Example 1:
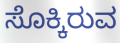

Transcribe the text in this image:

ಸೊಕ್ಕಿರುವ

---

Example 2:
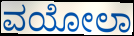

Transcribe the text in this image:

ವಯೋಲಾ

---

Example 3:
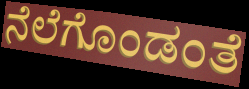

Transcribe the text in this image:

ನೆಲೆಗೊಂಡಂತೆ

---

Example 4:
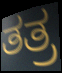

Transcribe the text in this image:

ತತ್ರ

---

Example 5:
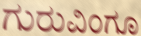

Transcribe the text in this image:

ಗುರುವಿಂಗೂ